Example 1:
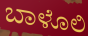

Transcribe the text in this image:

ಬಾಳೊಲಿ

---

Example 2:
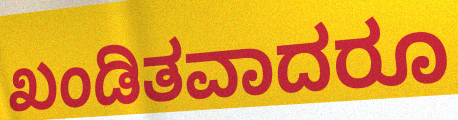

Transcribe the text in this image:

ಖಂಡಿತವಾದರೂ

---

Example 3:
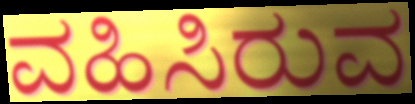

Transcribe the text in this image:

ವಹಿಸಿರುವ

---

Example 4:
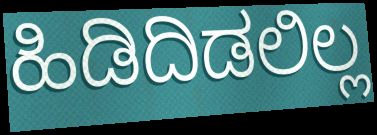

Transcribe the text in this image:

ಹಿಡಿದಿಡಲಿಲ್ಲ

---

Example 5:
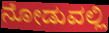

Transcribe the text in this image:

ನೋಡುವಲ್ಲಿ